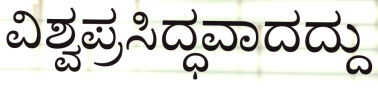
ವಿಶ್ವಪ್ರಸಿದ್ಧವಾದದ್ದು